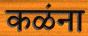
कळंना